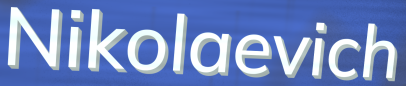
Nikolaevich